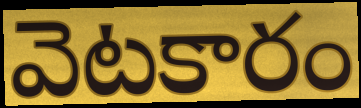
వెటకారం